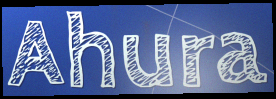
Ahura